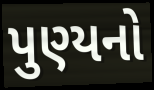
પુણ્યનો